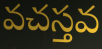
వచస్తవ